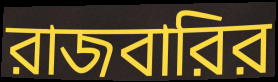
রাজবারির